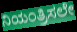
ನಿಯಂತ್ರಿಸಲೇ